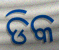
ଡିକ